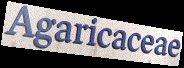
Agaricaceae